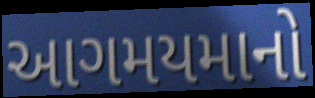
આગમયમાનો